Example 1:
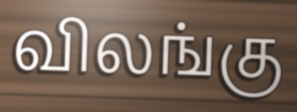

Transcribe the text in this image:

விலங்கு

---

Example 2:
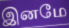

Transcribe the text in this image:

இனமே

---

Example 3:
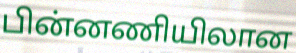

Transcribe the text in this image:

பின்னணியிலான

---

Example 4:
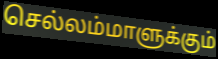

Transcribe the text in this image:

செல்லம்மாளுக்கும்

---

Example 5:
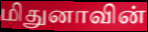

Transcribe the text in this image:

மிதுனாவின்